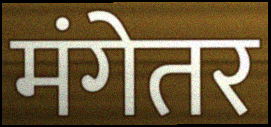
मंगेतर